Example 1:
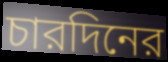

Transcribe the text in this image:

চারদিনের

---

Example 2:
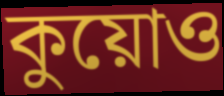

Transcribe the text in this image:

কুয়োও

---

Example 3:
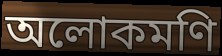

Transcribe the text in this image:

অলোকমণি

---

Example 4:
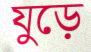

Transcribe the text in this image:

যুড়ে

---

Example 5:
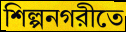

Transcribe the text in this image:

শিল্পনগরীতে